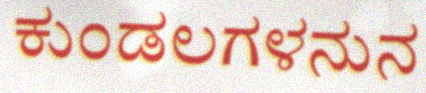
ಕುಂಡಲಗಳನುನ